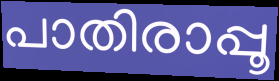
പാതിരാപ്പൂ